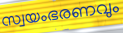
സ്വയംഭരണവും